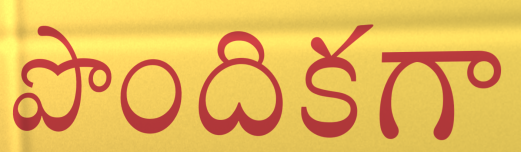
పొందికగా